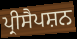
ਪ੍ਰੀਸੈਪਸ਼ਨ